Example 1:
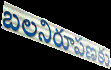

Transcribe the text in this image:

బలనిరూపణకు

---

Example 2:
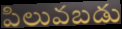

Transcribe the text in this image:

పిలువబడు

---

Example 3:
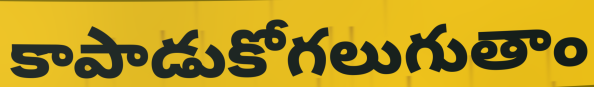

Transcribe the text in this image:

కాపాడుకోగలుగుతాం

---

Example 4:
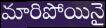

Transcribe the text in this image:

మారిపోయినై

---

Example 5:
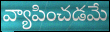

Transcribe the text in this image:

వ్యాపించడమే